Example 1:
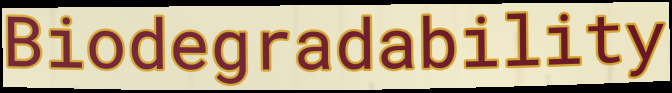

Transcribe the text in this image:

Biodegradability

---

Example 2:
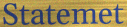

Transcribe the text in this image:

Statemet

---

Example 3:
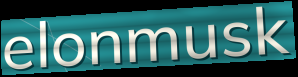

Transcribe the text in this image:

elonmusk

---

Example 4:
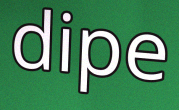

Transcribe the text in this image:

dipe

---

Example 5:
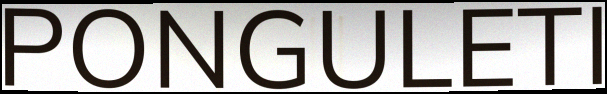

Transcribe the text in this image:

PONGULETI